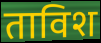
ताविश